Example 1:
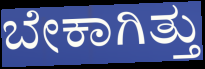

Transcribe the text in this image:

ಬೇಕಾಗಿತ್ತು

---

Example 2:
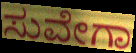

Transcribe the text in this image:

ಸುವೇಗಾ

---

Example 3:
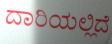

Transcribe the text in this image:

ದಾರಿಯಲ್ಲಿದೆ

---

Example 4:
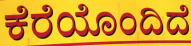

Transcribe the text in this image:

ಕೆರೆಯೊಂದಿದೆ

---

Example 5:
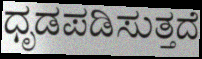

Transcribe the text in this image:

ಧೃಡಪಡಿಸುತ್ತದೆ